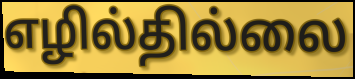
எழில்தில்லை